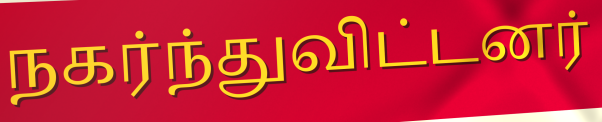
நகர்ந்துவிட்டனர்